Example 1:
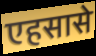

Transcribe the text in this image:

एहसासे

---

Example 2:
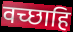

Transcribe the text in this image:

वच्छाहि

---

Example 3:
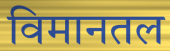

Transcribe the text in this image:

विमानतल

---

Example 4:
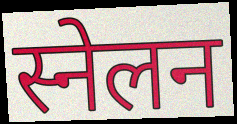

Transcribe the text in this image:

स्नेलन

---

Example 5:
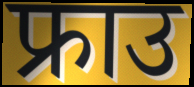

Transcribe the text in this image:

फ्राउ